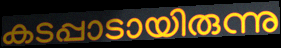
കടപ്പാടായിരുന്നു